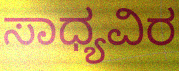
ಸಾಧ್ಯವಿರ